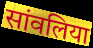
सांवलिया